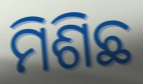
ମିଶିଛ